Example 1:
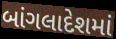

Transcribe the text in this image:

બાંગલાદેશમાં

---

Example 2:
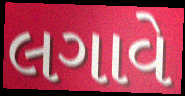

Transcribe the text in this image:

લગાવે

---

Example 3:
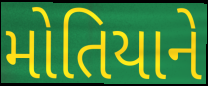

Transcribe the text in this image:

મોતિયાને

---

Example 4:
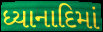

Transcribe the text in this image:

ધ્યાનાદિમાં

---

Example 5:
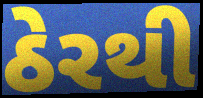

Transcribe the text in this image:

ઠેરથી